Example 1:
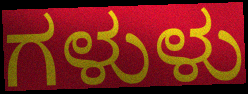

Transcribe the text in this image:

ಗಳುಳು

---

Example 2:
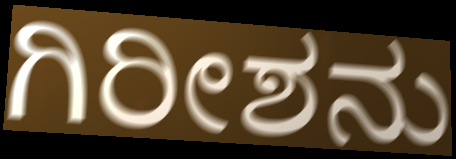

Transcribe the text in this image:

ಗಿರೀಶನು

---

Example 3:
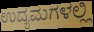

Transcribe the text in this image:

ಉದ್ಯಮಗಳಲ್ಲಿ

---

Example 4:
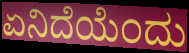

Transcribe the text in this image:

ಏನಿದೆಯೆಂದು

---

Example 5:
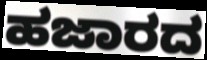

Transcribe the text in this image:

ಹಜಾರದ